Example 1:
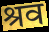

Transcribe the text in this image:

श्रव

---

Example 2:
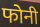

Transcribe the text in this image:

फोनी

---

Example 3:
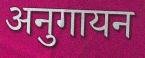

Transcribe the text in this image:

अनुगायन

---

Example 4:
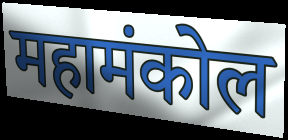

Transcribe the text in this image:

महामंकोल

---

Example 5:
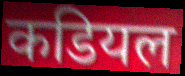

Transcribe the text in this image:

कडियल